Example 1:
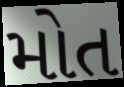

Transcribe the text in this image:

મોત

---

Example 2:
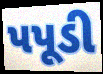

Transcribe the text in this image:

પપૂડી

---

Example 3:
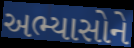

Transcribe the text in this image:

અભ્યાસોને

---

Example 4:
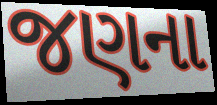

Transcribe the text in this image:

જણના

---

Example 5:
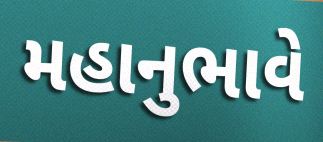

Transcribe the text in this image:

મહાનુભાવે